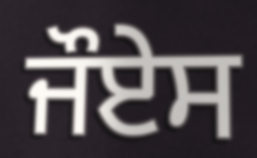
ਜੌਏਸ